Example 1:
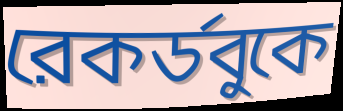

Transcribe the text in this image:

রেকর্ডবুকে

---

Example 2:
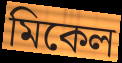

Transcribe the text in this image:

মিকেল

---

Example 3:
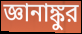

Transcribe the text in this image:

জ্ঞানাঙ্কুর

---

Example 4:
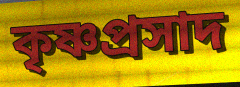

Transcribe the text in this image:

কৃষ্ণপ্রসাদ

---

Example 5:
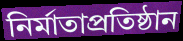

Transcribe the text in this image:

নির্মাতাপ্রতিষ্ঠান